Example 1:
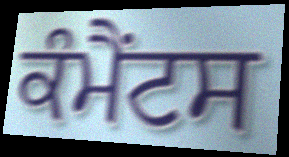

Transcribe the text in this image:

ਕੰਮੈਂਟਸ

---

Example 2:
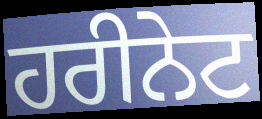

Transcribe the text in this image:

ਹਰੀਨੇਟ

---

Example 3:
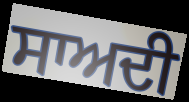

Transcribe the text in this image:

ਸਾਅਦੀ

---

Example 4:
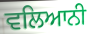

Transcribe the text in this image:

ਵਲਿਆਨੀ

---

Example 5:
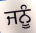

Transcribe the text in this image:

ਜਨੂੰ